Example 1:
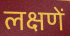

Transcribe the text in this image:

लक्षणें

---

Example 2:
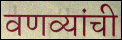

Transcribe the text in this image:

वणव्यांची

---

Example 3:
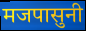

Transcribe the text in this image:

मजपासुनी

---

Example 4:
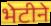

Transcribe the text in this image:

भेटीने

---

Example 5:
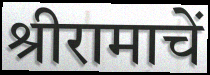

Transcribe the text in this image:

श्रीरामाचें